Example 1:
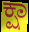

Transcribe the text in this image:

ಕ್ಷಾ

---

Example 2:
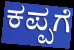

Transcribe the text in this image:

ಕಪ್ಪಗೆ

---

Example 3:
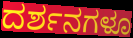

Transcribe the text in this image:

ದರ್ಶನಗಳೂ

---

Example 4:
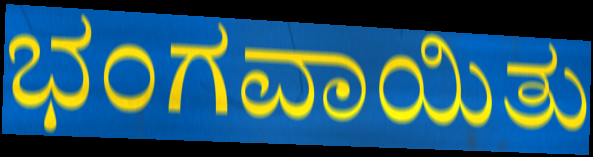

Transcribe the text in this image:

ಭಂಗವಾಯಿತು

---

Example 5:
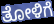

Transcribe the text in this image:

ತೋಳಿಗೆ